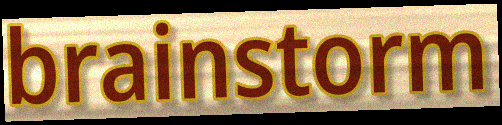
brainstorm